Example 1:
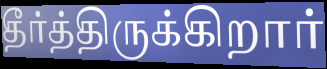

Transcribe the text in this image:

தீர்த்திருக்கிறார்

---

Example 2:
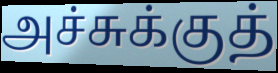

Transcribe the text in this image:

அச்சுக்குத்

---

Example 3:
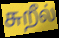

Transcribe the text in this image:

சுறீல்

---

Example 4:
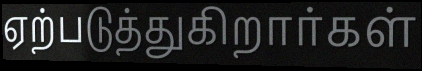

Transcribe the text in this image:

ஏற்படுத்துகிறார்கள்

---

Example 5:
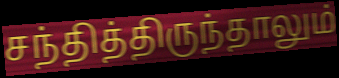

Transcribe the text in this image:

சந்தித்திருந்தாலும்